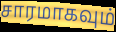
சாரமாகவும்